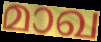
മാഖ